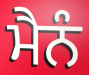
ਮੈਨੰ